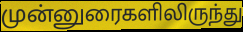
முன்னுரைகளிலிருந்து